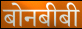
बोनबीबी